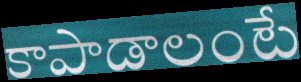
కాపాడాలంటే